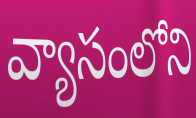
వ్యాసంలోని